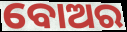
ବୋଅର